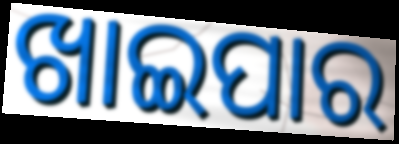
ଖାଇପାର